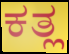
ಕತ್ಲ